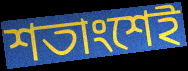
শতাংশেই